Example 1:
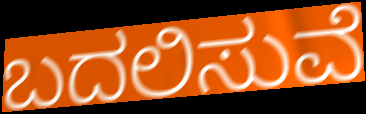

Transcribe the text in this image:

ಬದಲಿಸುವೆ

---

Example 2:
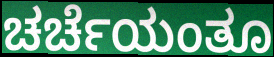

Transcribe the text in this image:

ಚರ್ಚೆಯಂತೂ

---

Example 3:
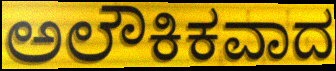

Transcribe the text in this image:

ಅಲೌಕಿಕವಾದ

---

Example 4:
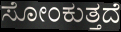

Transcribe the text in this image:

ಸೋಂಕುತ್ತದೆ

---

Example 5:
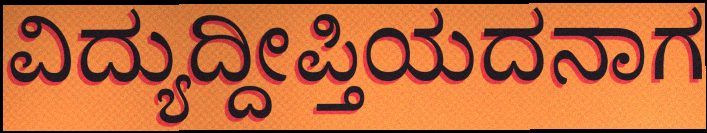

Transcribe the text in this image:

ವಿದ್ಯುದ್ದೀಪ್ತಿಯದನಾಗ